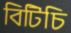
বিটিচি